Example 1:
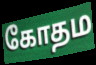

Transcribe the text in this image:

கோதம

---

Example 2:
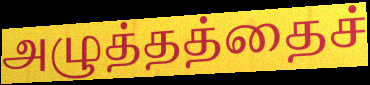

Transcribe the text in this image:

அழுத்தத்தைச்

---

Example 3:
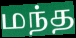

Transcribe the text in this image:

மந்த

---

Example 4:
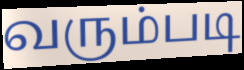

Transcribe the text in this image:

வரும்படி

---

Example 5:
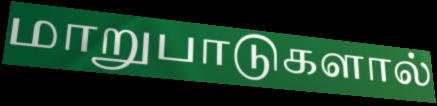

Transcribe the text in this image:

மாறுபாடுகளால்